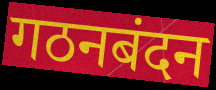
गठनबंदन